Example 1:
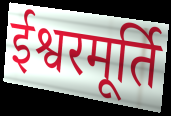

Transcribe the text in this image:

ईश्वरमूर्ति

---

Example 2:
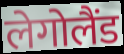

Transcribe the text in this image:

लेगोलैंड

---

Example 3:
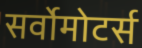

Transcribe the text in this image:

सर्वोमोटर्स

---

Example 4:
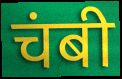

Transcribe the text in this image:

चंबी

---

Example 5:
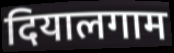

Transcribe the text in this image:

दियालगाम